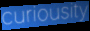
curiousity